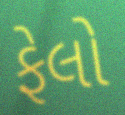
ફેલો